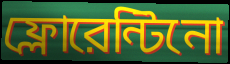
ফ্লোরেন্টিনো